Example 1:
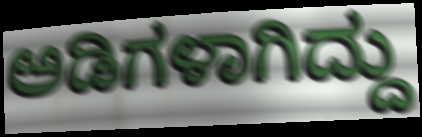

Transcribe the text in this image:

ಅಡಿಗಳಾಗಿದ್ದು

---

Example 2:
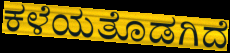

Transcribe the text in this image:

ಕಳೆಯತೊಡಗಿದೆ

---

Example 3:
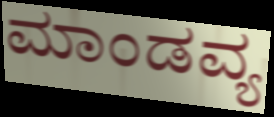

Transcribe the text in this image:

ಮಾಂಡವ್ಯ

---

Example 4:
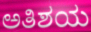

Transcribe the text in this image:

ಅತಿಶಯ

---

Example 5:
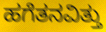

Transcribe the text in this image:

ಹಗೆತನವಿತ್ತು